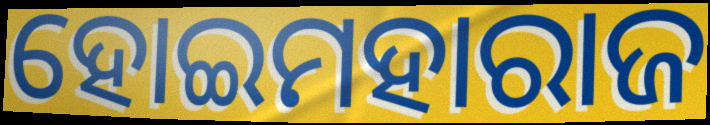
ହୋଇମହାରାଜ